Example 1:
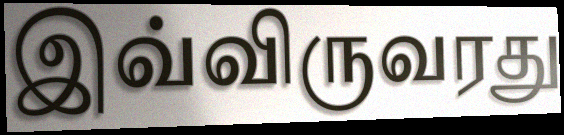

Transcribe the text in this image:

இவ்விருவரது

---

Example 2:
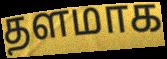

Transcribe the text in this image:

தளமாக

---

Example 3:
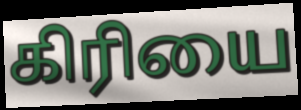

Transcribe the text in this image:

கிரியை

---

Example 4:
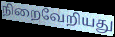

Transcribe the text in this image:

நிறைவேறியது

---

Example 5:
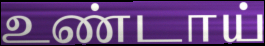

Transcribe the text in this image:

உண்டாய்